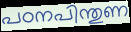
പഠനപിന്തുണ